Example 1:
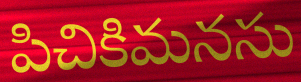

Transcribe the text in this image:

పిచికిమనసు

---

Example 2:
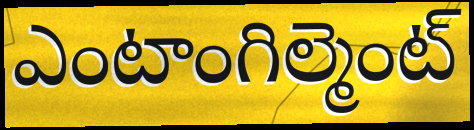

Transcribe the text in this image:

ఎంటాంగిల్మెంట్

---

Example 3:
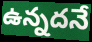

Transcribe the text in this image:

ఉన్నదనే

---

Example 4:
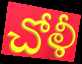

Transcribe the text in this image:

చోళీ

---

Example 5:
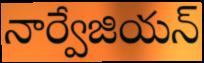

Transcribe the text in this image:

నార్వేజియన్